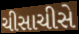
ચીસાચીસે